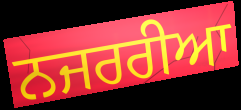
ਨਜਰਰੀਆ